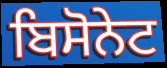
ਬਿਸੋਨੇਟ